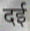
दई